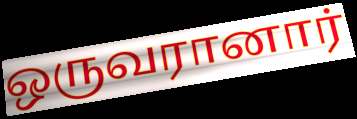
ஒருவரானார்